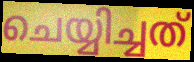
ചെയ്യിച്ചത്